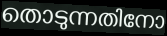
തൊടുന്നതിനോ